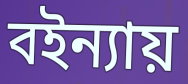
বইন্যায়